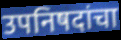
उपनिषदांचा